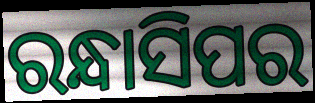
ରନ୍ଧାସିପର